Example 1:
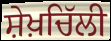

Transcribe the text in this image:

ਸ਼ੇਖ਼ਚਿੱਲੀ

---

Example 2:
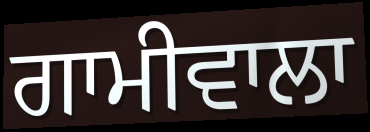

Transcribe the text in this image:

ਗਾਮੀਵਾਲਾ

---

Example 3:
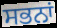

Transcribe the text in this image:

ਸਭਨਾਂ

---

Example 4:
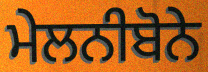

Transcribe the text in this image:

ਮੇਲਨੀਬੋਨੇ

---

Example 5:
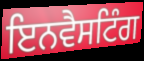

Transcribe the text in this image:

ਇਨਵੈਸਟਿੰਗ